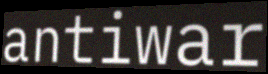
antiwar